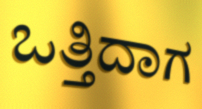
ಒತ್ತಿದಾಗ